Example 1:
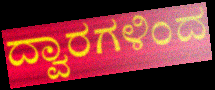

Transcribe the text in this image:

ದ್ವಾರಗಳಿಂದ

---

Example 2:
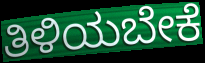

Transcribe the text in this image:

ತಿಳಿಯಬೇಕೆ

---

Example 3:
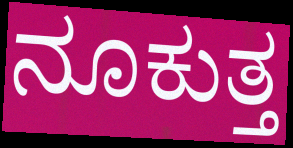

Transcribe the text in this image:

ನೂಕುತ್ತ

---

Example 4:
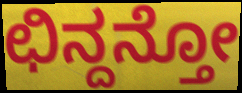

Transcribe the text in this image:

ಛಿನ್ದನ್ತೋ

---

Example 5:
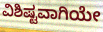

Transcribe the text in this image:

ವಿಶಿಷ್ಟವಾಗಿಯೇ